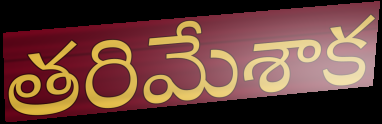
తరిమేశాక